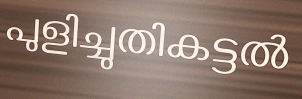
പുളിച്ചുതികട്ടൽ